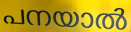
പനയാൽ